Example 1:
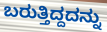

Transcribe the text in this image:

ಬರುತ್ತಿದ್ದದನ್ನು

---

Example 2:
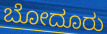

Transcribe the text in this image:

ಬೋದೂರು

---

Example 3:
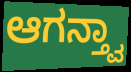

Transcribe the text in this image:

ಆಗನ್ತ್ವಾ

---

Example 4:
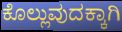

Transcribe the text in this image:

ಕೊಲ್ಲುವುದಕ್ಕಾಗಿ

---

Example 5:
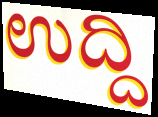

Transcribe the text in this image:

ಉದ್ದಿ